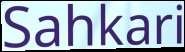
Sahkari